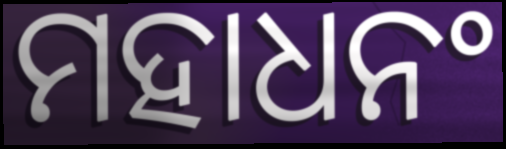
ମହାଧନଂ